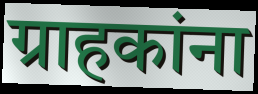
ग्राहकांना